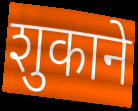
शुकाने